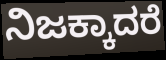
ನಿಜಕ್ಕಾದರೆ